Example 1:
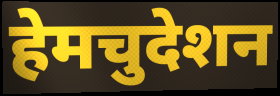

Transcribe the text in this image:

हेमचुदेशन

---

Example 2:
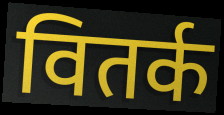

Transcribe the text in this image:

वितर्क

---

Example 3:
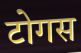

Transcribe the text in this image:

टोगस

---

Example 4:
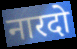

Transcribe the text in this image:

नारदो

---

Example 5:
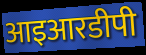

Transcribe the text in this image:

आइआरडीपी